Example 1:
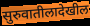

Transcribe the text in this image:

सुरुवातीलादेखील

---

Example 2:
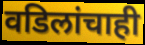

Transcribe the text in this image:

वडिलांचाही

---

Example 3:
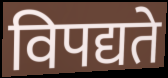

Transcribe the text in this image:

विपद्यते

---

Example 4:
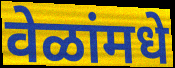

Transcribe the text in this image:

वेळांमधे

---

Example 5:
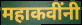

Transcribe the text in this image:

महाकवींनी